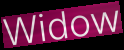
Widow